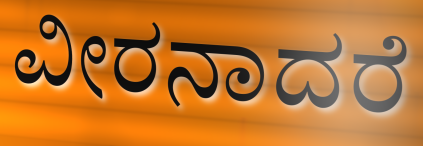
ವೀರನಾದರೆ